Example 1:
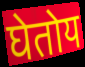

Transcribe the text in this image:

घेतोय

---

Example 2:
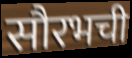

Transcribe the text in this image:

सौरभची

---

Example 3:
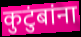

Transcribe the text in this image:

कुटुंबांना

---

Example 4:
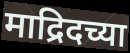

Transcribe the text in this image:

माद्रिदच्या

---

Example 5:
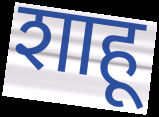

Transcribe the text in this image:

शाहू